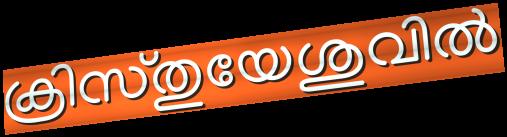
ക്രിസ്തുയേശുവിൽ